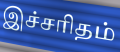
இச்சரிதம்